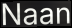
Naan